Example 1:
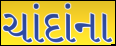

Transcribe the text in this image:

ચાંદાંના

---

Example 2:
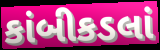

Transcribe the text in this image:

કાંબીકડલાં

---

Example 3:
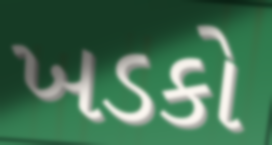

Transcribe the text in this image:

ખડકો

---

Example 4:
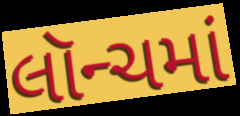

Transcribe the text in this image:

લૉન્ચમાં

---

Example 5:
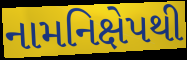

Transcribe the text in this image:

નામનિક્ષેપથી